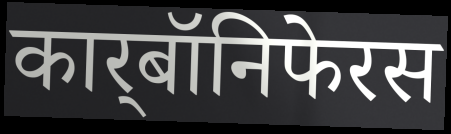
कार्‌बॉनिफेरस